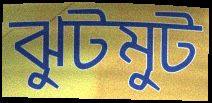
ঝুটমুট